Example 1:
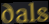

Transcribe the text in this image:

dals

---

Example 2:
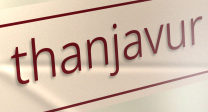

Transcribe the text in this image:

thanjavur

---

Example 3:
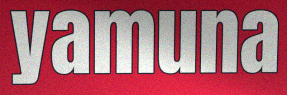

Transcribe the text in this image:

yamuna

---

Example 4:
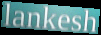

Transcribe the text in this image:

lankesh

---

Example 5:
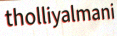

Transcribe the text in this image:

tholliyalmani